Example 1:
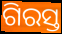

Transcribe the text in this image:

ଗିରସ୍ତ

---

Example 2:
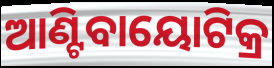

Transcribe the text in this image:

ଆଣ୍ଟିବାୟୋଟିକ୍ର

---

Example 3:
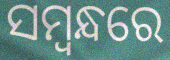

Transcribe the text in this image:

ସମ୍ୱନ୍ଧରେ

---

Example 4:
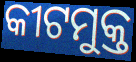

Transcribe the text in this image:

କୀଟମୁକ୍ତ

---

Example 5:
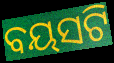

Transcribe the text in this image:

ବୟସଟି